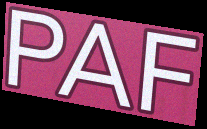
PAF